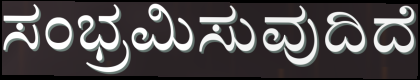
ಸಂಭ್ರಮಿಸುವುದಿದೆ